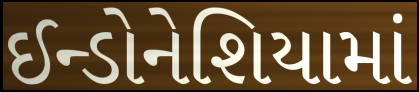
ઈન્ડોનેશિયામાં